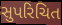
સુપરિચિત